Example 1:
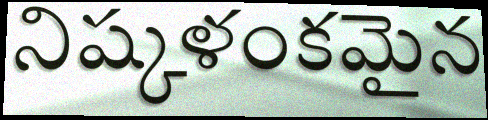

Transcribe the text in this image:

నిష్కళంకమైన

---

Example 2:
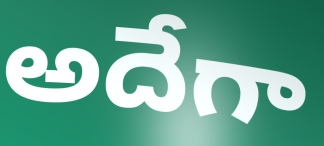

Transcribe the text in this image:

అదేగా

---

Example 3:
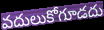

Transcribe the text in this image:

వదులుకోగూడదు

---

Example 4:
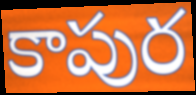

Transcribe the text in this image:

కాపుర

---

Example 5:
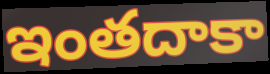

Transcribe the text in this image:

ఇంతదాకా